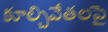
కూల్చివేతలపై